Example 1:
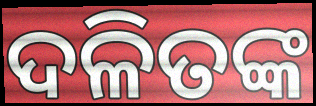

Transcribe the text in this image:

ଦଳିତଙ୍କ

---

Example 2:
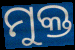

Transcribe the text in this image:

ମୁକ୍ତ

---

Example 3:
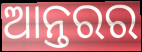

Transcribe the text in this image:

ଆନ୍ତରର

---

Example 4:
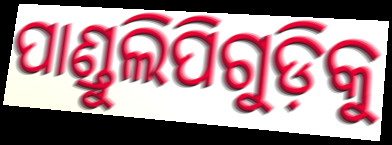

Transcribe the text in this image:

ପାଣ୍ଡୁଲିପିଗୁଡ଼ିକୁ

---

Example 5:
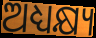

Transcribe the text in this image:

ଅଧ୍ୟକ୍ଷ୍ୟ